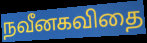
நவீனகவிதை